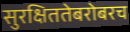
सुरक्षिततेबरोबरच